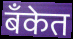
बॅंकेत